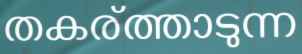
തകര്ത്താടുന്ന